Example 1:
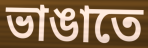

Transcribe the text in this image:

ভাঙাতে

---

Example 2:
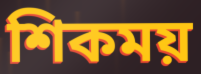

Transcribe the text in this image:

শিকময়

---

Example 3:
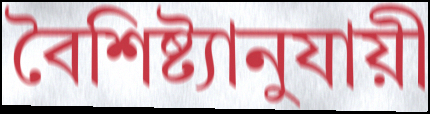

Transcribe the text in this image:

বৈশিষ্ট্যানুযায়ী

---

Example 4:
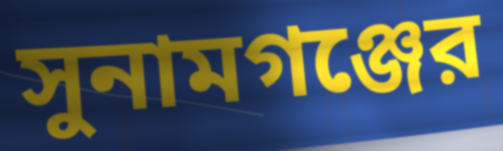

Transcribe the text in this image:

সুনামগঞ্জের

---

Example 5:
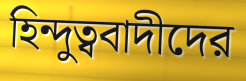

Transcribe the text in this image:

হিন্দুত্ববাদীদের